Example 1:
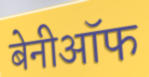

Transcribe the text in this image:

बेनीऑफ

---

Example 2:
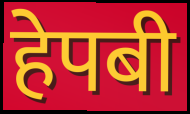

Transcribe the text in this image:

हेपबी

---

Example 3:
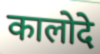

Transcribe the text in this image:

कालोदे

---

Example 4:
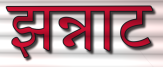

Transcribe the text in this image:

झन्नाट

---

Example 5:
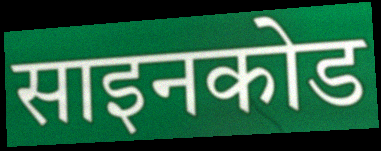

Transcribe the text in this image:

साइनकोड